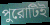
পুরোটিই